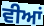
ਵੀਆਂ